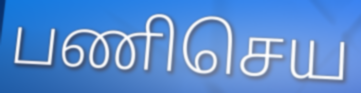
பணிசெய